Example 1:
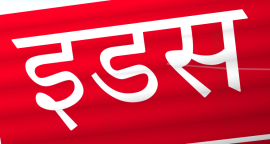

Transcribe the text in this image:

इडस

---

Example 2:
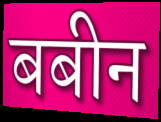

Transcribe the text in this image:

बबीन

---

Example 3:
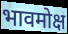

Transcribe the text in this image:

भावमोक्ष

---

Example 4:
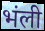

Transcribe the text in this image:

भंली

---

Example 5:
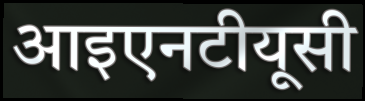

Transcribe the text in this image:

आइएनटीयूसी